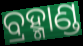
ବ୍ରହ୍ମାଣ୍ଡ